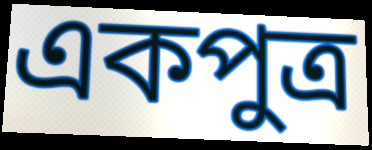
একপুত্র